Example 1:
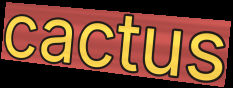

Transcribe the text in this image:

cactus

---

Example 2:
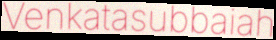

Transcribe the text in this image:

Venkatasubbaiah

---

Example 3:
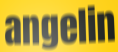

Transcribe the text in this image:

angelin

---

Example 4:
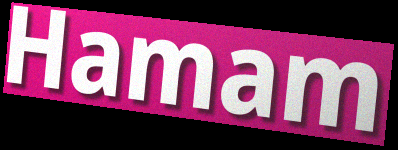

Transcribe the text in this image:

Hamam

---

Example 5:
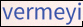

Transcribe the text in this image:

vermeyi